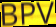
BPV